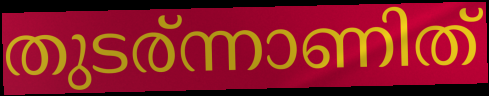
തുടര്ന്നാണിത്